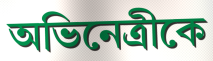
অভিনেত্রীকে